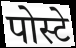
पोस्टे